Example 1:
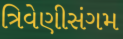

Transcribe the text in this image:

ત્રિવેણીસંગમ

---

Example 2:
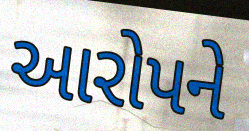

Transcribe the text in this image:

આરોપને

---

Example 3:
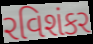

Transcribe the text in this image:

રવિશંકર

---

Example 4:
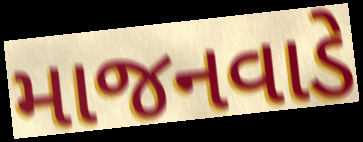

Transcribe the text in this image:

માજનવાડે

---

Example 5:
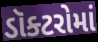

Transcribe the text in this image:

ડૉક્ટરોમાં